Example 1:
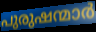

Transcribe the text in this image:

പുരുഷന്മാർ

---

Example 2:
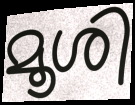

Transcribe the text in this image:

മൂശി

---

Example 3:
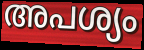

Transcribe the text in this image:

അപശ്യം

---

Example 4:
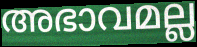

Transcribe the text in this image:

അഭാവമല്ല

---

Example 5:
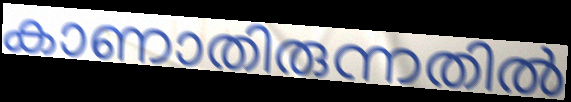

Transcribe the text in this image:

കാണാതിരുന്നതിൽ